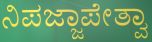
ನಿಪಜ್ಜಾಪೇತ್ವಾ